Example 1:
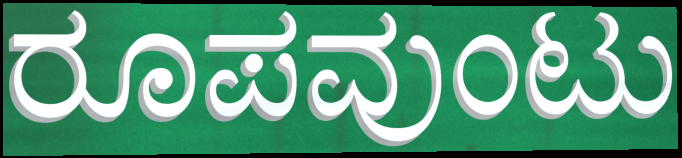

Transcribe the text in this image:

ರೂಪವುಂಟು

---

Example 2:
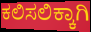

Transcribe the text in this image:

ಕಲಿಸಲಿಕ್ಕಾಗಿ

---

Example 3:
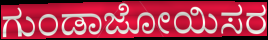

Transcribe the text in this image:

ಗುಂಡಾಜೋಯಿಸರ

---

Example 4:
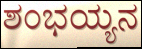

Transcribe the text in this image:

ಶಂಭಯ್ಯನ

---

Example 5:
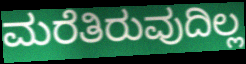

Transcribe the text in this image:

ಮರೆತಿರುವುದಿಲ್ಲ